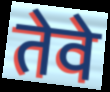
तेवे